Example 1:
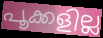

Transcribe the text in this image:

പൂക്കളില്ല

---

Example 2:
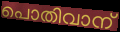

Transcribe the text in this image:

പൊതിവാന്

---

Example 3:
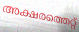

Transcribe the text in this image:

അക്ഷരത്തെറ്റ്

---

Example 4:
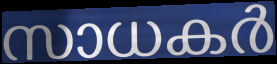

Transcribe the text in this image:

സാധകർ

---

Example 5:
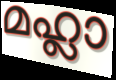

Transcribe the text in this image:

മഹ്ലാ